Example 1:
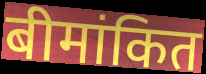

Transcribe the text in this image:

बीमांकित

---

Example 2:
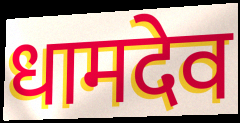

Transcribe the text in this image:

धामदेव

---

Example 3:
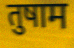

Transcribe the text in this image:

तुषाम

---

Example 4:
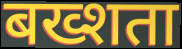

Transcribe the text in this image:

बख्शता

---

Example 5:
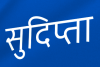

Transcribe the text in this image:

सुदिप्ता